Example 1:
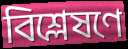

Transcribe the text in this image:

বিশ্লেষণে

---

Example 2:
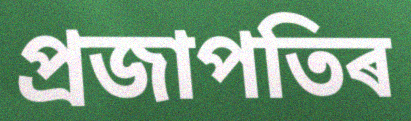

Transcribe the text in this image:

প্ৰজাপতিৰ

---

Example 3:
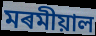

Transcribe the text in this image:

মৰমীয়াল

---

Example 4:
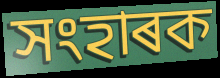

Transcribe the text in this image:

সংহাৰক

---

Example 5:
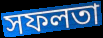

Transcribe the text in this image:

সফলতা